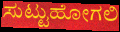
ಸುಟ್ಟುಹೋಗಲಿ